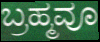
ಬ್ರಹ್ಮವೂ